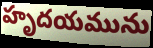
హృదయమును